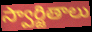
స్వార్జితాలు